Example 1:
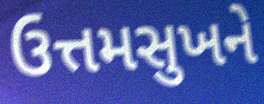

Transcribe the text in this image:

ઉત્તમસુખને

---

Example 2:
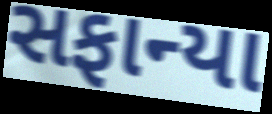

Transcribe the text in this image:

સફાન્યા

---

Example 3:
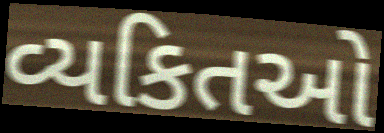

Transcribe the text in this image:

વ્યકિતઓ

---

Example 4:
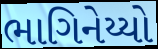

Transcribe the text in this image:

ભાગિનેય્યો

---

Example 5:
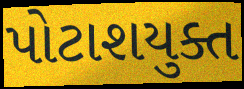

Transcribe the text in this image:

પોટાશયુક્ત